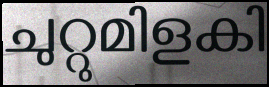
ചുറ്റുമിളകി